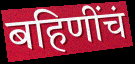
बहिणींचं